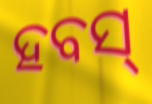
ହବସ୍